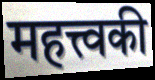
महत्त्वकी